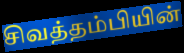
சிவத்தம்பியின்